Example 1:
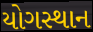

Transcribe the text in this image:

યોગસ્થાન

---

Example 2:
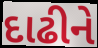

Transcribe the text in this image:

દાઢીને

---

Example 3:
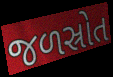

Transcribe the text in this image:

જળસ્રોત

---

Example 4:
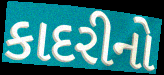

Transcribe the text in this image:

કાદરીનો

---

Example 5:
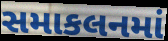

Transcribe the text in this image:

સમાકલનમાં